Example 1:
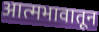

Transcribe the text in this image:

आत्मभावातून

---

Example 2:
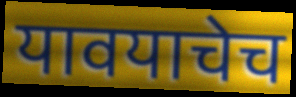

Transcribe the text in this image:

यावयाचेच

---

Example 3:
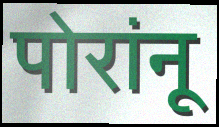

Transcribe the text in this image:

पोरांनू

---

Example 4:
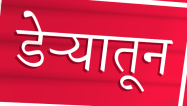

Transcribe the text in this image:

डेऱ्यातून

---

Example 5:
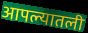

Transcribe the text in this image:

आपल्यातली